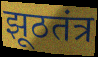
झूठतंत्र